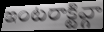
ఇంటరాక్టివ్గా